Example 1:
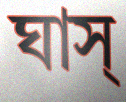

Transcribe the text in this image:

ঘাস্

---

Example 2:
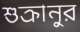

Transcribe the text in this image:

শুক্রানুর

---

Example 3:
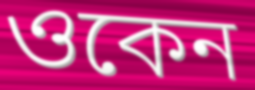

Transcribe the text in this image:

ওকেন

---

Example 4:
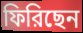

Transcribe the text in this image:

ফিরিছেন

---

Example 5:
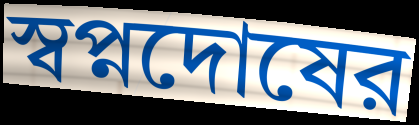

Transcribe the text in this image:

স্বপ্নদোষের